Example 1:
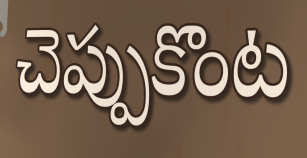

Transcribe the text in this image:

చెప్పుకొంట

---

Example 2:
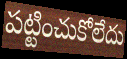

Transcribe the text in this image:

పట్టించుకోలేదు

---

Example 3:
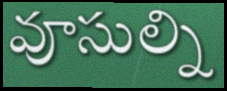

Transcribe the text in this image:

వూసుల్ని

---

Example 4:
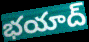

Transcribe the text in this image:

భయాద్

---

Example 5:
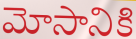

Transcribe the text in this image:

మోసానికి